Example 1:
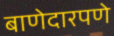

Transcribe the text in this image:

बाणेदारपणे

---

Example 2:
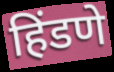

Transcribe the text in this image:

हिंडणे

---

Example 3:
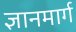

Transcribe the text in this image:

ज्ञानमार्ग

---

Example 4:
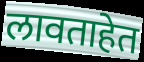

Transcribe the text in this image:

लावताहेत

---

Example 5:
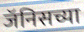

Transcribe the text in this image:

जॅनिसच्या